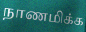
நாணமிக்க